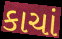
કાચાં